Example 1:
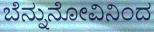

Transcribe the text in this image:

ಬೆನ್ನುನೋವಿನಿಂದ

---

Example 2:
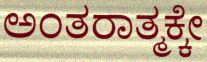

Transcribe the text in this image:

ಅಂತರಾತ್ಮಕ್ಕೇ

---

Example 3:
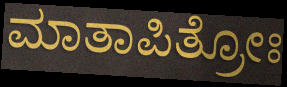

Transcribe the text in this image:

ಮಾತಾಪಿತ್ರೋಃ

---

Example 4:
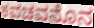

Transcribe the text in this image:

ಕವಚವನೊನ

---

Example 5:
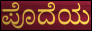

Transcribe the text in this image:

ಪೊದೆಯ